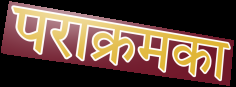
पराक्रमका